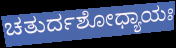
ಚತುರ್ದಶೋಧ್ಯಾಯಃ